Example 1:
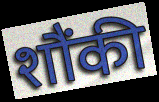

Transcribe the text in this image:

शौंकी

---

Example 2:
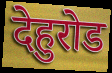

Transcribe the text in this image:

देहुरोड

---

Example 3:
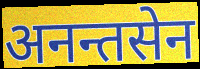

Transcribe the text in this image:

अनन्तसेन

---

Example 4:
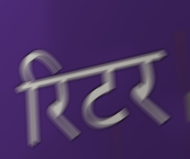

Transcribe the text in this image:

रिटर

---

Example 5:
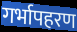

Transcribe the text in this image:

गर्भापहरण